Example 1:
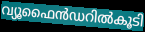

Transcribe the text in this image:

വ്യൂഫൈൻഡറിൽകൂടി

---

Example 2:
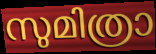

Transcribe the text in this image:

സുമിത്രാ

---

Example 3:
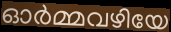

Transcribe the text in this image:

ഓർമ്മവഴിയേ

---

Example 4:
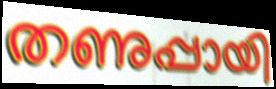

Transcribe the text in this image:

തണുപ്പായി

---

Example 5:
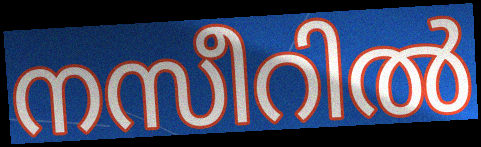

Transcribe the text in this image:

നസീറിൽ